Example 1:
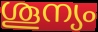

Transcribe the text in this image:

ശൂന്യം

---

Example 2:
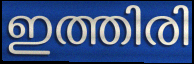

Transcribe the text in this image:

ഇത്തിരി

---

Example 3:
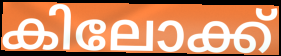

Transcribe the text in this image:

കിലോക്ക്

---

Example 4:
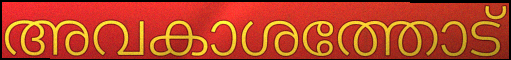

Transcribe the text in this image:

അവകാശത്തോട്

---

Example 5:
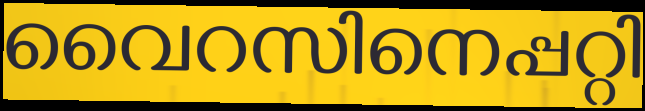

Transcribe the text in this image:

വൈറസിനെപ്പറ്റി